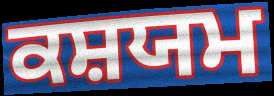
ਕਸ਼ਯਮ